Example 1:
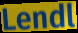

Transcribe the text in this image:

Lendl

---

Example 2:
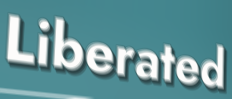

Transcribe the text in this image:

Liberated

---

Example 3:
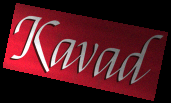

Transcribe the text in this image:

Kavad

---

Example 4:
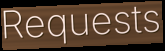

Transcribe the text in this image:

Requests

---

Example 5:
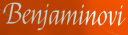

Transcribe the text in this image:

Benjaminovi